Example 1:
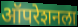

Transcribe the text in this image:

ऑपरेशनला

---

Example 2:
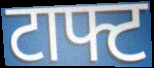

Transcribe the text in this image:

टाफ्ट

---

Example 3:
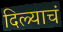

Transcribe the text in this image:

दिल्याचं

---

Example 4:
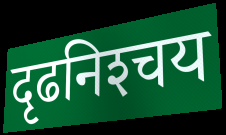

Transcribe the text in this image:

दृढनिश्‍चय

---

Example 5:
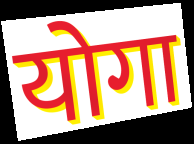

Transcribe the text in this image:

योगा